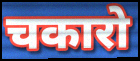
चकारो